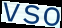
vso